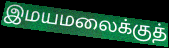
இமயமலைக்குத்